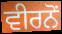
ਵੀਰਨੋਂ